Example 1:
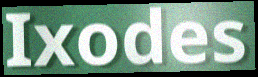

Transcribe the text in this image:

Ixodes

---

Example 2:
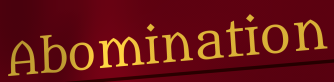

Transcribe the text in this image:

Abomination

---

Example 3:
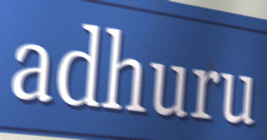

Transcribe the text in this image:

adhuru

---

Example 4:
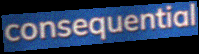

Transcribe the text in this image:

consequential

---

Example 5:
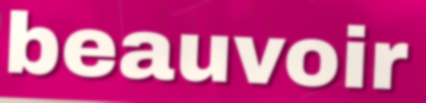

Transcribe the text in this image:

beauvoir